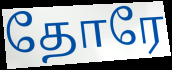
தோரே